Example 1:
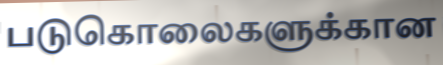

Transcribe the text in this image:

படுகொலைகளுக்கான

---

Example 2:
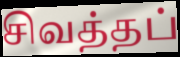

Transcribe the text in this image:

சிவத்தப்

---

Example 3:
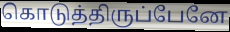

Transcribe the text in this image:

கொடுத்திருப்பேனே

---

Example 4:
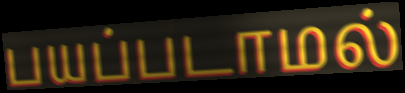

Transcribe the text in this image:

பயப்படாமல்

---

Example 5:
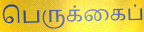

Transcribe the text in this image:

பெருக்கைப்